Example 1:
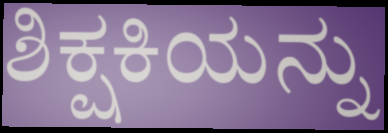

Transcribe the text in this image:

ಶಿಕ್ಷಕಿಯನ್ನು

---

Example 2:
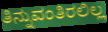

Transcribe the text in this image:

ತಿನ್ನುವಂತಿರಲಿಲ್ಲ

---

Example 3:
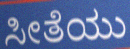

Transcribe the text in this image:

ಸೀತೆಯು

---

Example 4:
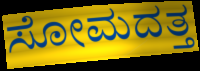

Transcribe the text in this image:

ಸೋಮದತ್ತ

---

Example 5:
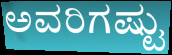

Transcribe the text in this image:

ಅವರಿಗಷ್ಟು